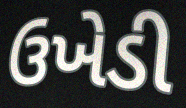
ઉખેડી